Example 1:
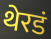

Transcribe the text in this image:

थेरडं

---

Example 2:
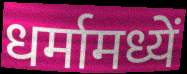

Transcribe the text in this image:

धर्मामध्यें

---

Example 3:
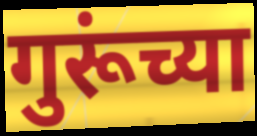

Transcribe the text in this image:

गुरूंच्या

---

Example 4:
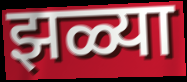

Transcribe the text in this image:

झळ्या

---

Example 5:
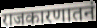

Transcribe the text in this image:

राजकारणातनं